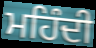
ਮਹਿੰਦੀ